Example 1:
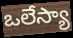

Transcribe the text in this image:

ఒలేస్యా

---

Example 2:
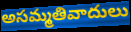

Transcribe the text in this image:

అసమ్మతివాదులు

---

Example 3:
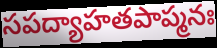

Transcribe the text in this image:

సపద్యాహతపాప్మనః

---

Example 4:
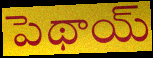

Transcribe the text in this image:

పెథాయ్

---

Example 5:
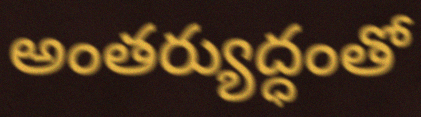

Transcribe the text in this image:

అంతర్యుద్ధంతో